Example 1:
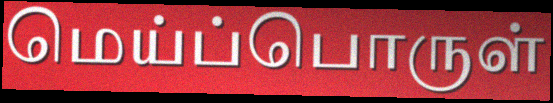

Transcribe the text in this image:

மெய்ப்பொருள்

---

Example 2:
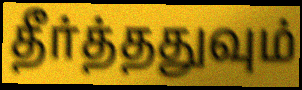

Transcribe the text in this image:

தீர்த்ததுவும்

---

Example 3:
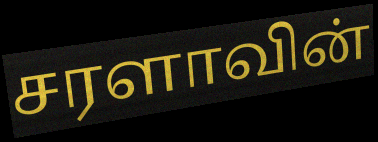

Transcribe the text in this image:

சரளாவின்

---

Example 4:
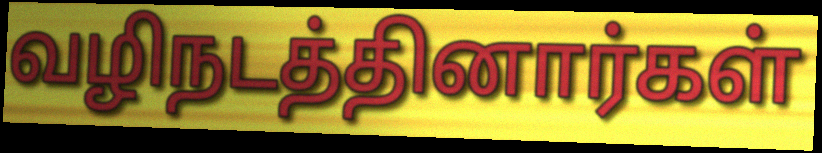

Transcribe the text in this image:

வழிநடத்தினார்கள்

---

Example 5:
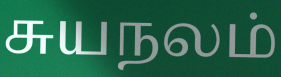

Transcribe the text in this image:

சுயநலம்